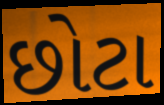
છોટા